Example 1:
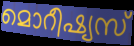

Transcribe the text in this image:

മൊറീഷ്യസ്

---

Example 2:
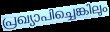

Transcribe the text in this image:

പ്രഖ്യാപിച്ചെങ്കിലും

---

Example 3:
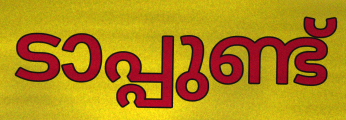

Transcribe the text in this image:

ടാപ്പുണ്ട്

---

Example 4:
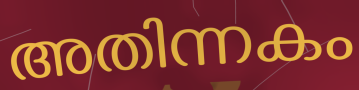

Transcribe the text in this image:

അതിന്നകം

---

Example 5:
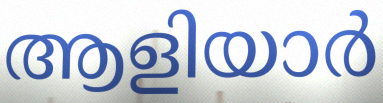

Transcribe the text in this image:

ആളിയാർ